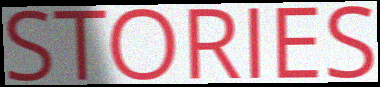
STORIES